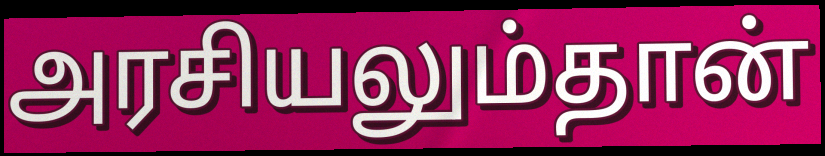
அரசியலும்தான்